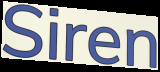
Siren